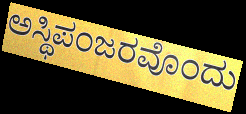
ಅಸ್ಥಿಪಂಜರವೊಂದು